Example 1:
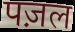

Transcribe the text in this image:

पज़ल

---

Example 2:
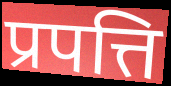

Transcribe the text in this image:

प्रपत्ति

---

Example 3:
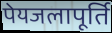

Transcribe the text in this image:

पेयजलापूर्ति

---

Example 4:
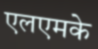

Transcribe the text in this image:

एलएमके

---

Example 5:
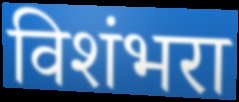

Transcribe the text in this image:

विशंभरा